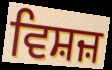
ਵਿਸ਼ਜ਼